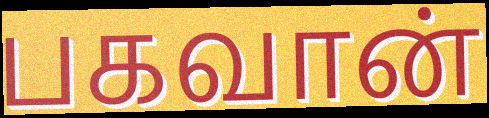
பகவான்